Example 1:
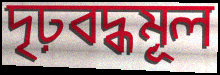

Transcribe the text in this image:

দৃঢ়বদ্ধমূল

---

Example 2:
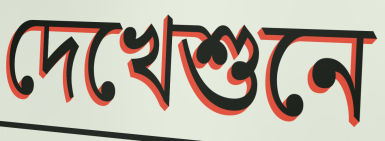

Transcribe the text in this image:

দেখেশুনে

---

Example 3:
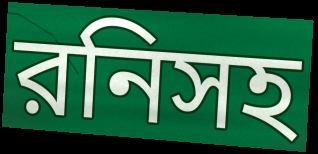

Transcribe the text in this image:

রনিসহ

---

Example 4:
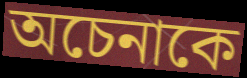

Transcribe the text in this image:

অচেনাকে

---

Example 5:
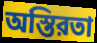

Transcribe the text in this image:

অস্তিরতা